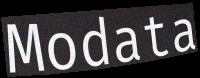
Modata